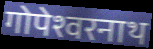
गोपेश्वरनाथ